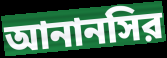
আনানসির